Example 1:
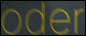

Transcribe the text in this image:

oder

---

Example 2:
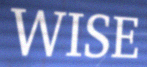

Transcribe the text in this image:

WISE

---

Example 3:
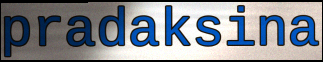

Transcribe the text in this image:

pradaksina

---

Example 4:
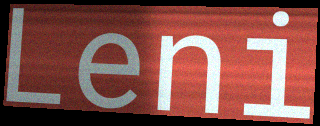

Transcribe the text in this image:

Leni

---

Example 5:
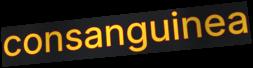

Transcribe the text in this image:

consanguinea